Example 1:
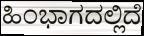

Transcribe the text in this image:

ಹಿಂಭಾಗದಲ್ಲಿದೆ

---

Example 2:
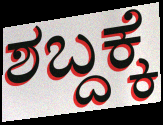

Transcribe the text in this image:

ಶಬ್ದಕ್ಕೆ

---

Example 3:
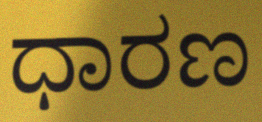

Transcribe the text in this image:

ಧಾರಣ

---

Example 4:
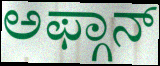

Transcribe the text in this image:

ಅಫ್ಗಾನ್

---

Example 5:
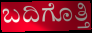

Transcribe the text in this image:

ಬದಿಗೊತ್ತಿ